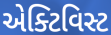
એક્ટિવિસ્ટ